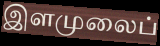
இளமுலைப்